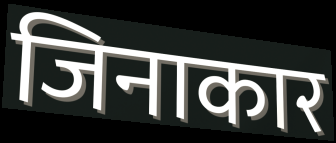
जिनाकार